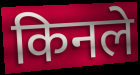
किनले